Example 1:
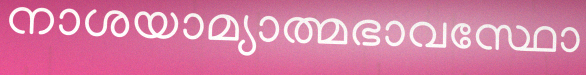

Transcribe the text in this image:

നാശയാമ്യാത്മഭാവസ്ഥോ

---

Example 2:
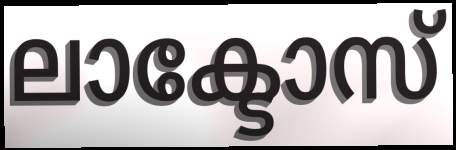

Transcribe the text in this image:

ലാക്ടോസ്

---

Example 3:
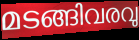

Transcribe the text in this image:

മടങ്ങിവരവു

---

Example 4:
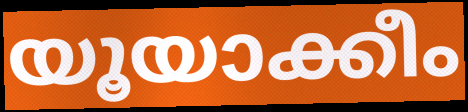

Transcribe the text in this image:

യൂയാക്കീം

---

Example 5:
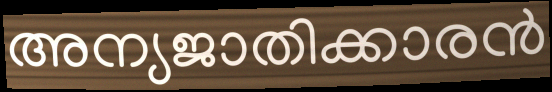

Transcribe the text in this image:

അന്യജാതിക്കാരൻ